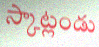
స్కాట్లండు